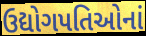
ઉદ્યોગપતિઓનાં